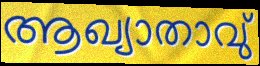
ആഖ്യാതാവു്